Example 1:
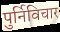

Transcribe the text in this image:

पुर्निविचार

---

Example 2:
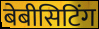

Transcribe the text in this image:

बेबीसिटिंग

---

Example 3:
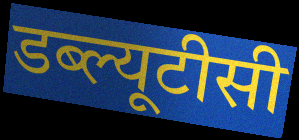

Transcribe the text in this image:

डब्ल्यूटीसी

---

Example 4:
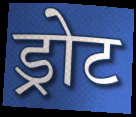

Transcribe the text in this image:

ड्रोट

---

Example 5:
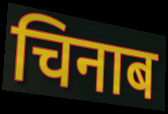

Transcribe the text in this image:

चिनाब